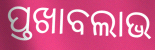
ପ୍ତଖାବଲାଭ